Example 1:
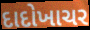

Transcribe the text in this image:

દાદોખાચર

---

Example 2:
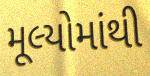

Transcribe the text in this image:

મૂલ્યોમાંથી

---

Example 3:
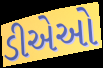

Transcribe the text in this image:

ડીએઓ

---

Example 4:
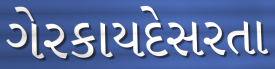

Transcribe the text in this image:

ગેરકાયદેસરતા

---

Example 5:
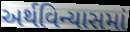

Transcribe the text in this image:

અર્થવિન્યાસમાં